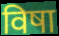
विषा